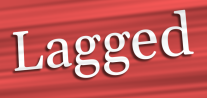
Lagged